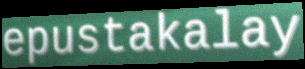
epustakalay